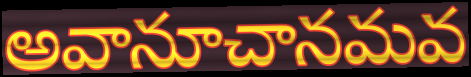
అవానూచానమవ